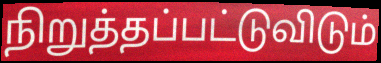
நிறுத்தப்பட்டுவிடும்